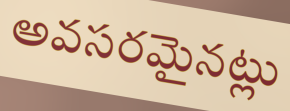
అవసరమైనట్లు